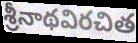
శ్రీనాథవిరచిత